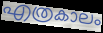
എത്രകാലം